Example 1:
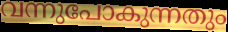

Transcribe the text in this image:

വന്നുപോകുന്നതും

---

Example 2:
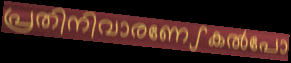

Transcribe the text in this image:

പ്രതിനിവാരണേഽകൽപോ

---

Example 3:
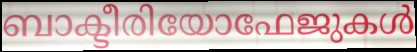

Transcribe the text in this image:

ബാക്ടീരിയോഫേജുകൾ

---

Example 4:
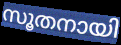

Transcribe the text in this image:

സൂതനായി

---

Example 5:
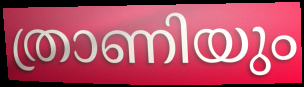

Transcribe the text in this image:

ത്രാണിയും